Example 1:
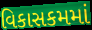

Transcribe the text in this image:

વિકાસકમમાં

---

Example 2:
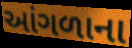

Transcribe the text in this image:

આંગળાના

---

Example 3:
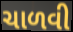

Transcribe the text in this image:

ચાળવી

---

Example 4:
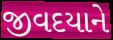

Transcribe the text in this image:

જીવદયાને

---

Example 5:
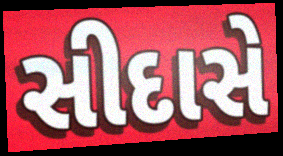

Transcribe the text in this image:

સીદાસે